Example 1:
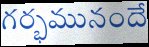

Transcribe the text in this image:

గర్భమునందే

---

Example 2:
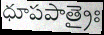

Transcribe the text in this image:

ధూపపాత్రైః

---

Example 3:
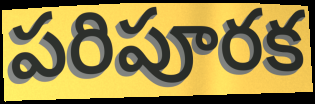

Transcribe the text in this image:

పరిపూరక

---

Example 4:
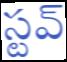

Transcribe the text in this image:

స్టవ్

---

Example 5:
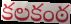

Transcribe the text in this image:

కలకంఠ